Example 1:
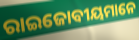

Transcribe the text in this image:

ରାଇଜୋବୀୟମାନେ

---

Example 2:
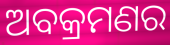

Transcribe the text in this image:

ଅବକ୍ରମଣର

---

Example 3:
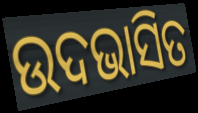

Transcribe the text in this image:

ଉଦଭାସିତ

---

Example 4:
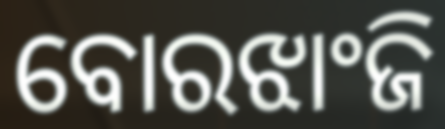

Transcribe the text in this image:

ବୋରଝାଂଜି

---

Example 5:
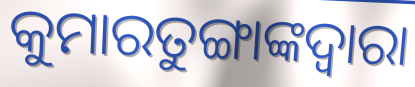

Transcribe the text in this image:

କୁମାରତୁଙ୍ଗାଙ୍କଦ୍ୱାରା